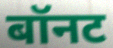
बॉनट